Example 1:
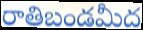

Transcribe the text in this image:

రాతిబండమీద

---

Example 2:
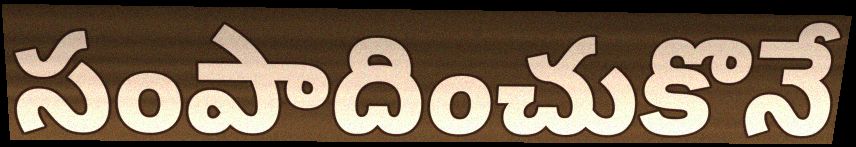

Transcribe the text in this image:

సంపాదించుకొనే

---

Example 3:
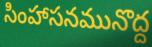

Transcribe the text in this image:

సింహాసనమునొద్ద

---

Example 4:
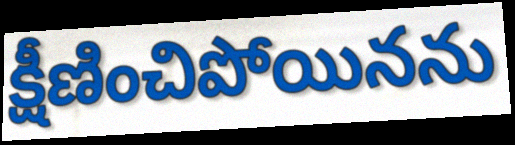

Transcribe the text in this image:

క్షీణించిపోయినను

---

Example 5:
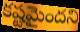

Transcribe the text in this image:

కష్టమైందని